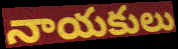
నాయకులు